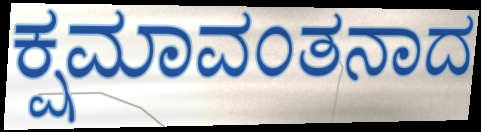
ಕ್ಷಮಾವಂತನಾದ